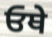
ਓਥੇ